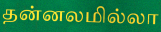
தன்னலமில்லா